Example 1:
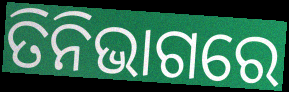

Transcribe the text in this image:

ତିନିଭାଗରେ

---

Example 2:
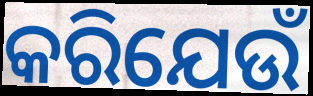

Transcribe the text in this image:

କରିଯେଉଁ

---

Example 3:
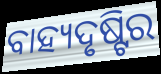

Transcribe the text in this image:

ବାହ୍ୟଦୃଷ୍ଟିର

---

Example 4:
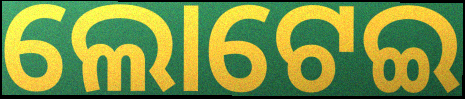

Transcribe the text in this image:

ଲୋଟେଇ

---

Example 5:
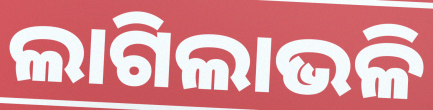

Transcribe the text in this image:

ଲାଗିଲାଭଳି